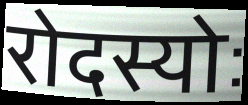
रोदस्योः